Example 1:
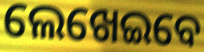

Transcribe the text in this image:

ଲେଖେଇବେ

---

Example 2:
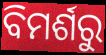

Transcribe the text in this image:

ବିମର୍ଶରୁ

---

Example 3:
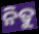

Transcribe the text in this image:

ନିତୁ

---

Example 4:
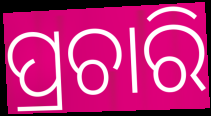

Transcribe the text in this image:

ପ୍ରଚାରି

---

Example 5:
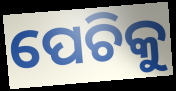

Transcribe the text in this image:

ପେଚିକୁ